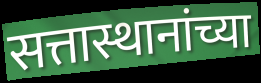
सत्तास्थानांच्या